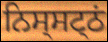
ਨਿਸ੍ਸਟ੍ਠਂ